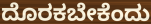
ದೊರಕಬೇಕೆಂದು